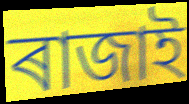
ৰাজাই